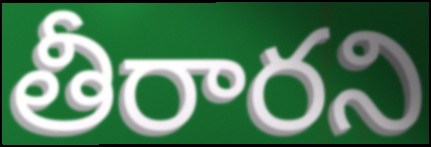
తీరారని